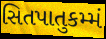
સિતપાતુકમ્મં